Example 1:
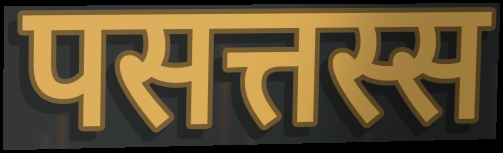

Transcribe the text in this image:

पसत्तस्स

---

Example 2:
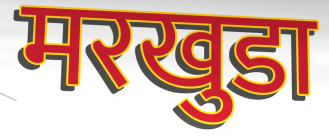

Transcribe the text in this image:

मरखुडा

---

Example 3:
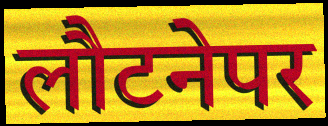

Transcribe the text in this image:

लौटनेपर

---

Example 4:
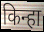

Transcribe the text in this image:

किन्हा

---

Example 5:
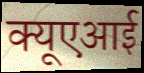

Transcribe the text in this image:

क्यूएआई